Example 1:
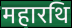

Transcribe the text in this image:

महारथि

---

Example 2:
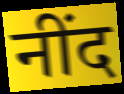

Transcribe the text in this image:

नींद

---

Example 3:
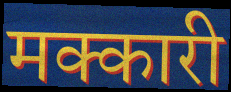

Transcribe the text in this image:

मक्कारी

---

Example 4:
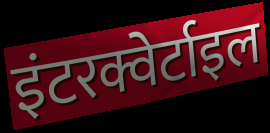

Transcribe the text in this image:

इंटरक्वेर्टाइल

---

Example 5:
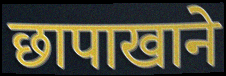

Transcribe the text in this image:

छापाखाने